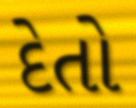
દેતો